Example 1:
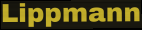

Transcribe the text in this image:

Lippmann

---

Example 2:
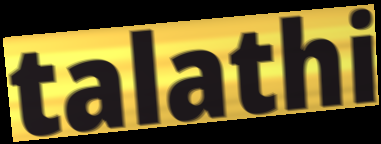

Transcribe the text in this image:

talathi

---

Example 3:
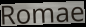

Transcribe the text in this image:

Romae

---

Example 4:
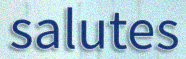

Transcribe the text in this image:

salutes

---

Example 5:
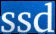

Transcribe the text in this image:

ssd